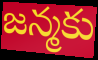
జన్మకు